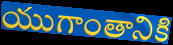
యుగాంతానికి